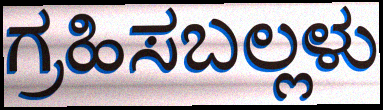
ಗ್ರಹಿಸಬಲ್ಲಳು